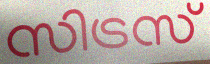
സിട്രസ്